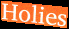
Holies